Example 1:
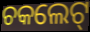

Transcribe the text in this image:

ଚକଲେଟ୍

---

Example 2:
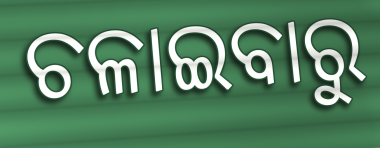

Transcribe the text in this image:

ଚଳାଇବାରୁ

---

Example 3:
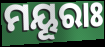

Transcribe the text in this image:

ମୟୂରାଃ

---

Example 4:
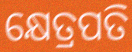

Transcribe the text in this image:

କ୍ଷେତ୍ରପତି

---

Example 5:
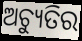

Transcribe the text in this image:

ଅଚ୍ୟୁତିର